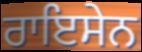
ਰਾਇਸੇਨ